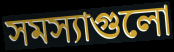
সমস্যাগুলো